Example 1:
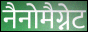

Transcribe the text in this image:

नैनोमैग्नेट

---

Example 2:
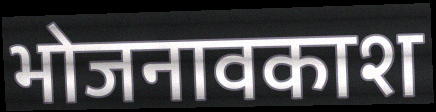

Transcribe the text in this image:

भोजनावकाश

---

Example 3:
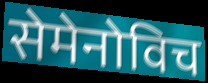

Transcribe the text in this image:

सेमेनोविच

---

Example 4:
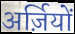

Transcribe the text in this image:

अर्ज़ियों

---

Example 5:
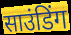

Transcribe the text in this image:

साउंडिंग